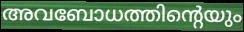
അവബോധത്തിന്റെയും